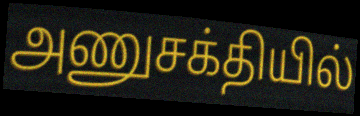
அணுசக்தியில்